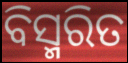
ବିସ୍ମରିତ